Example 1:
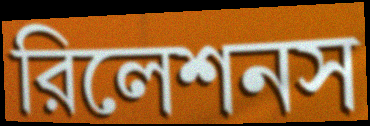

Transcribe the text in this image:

রিলেশনস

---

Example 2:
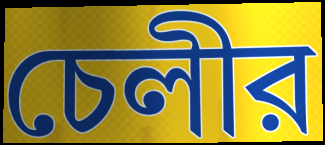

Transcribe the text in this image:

চেলীর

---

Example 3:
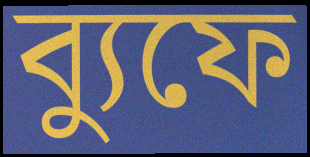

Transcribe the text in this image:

ব্যুফে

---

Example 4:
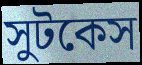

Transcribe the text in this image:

সুটকেস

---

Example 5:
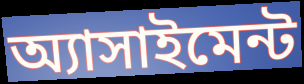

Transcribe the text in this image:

অ্যাসাইমেন্ট